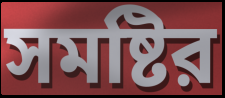
সমষ্টির